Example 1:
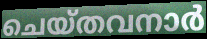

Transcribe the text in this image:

ചെയ്തവനാർ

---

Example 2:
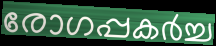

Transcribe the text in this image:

രോഗപ്പകർച്ച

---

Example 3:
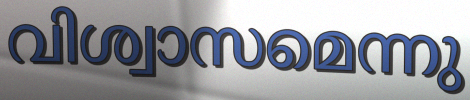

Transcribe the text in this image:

വിശ്വാസമെന്നു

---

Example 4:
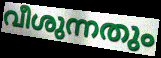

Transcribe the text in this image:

വീശുന്നതും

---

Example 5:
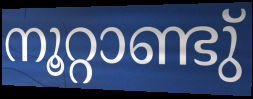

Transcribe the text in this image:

നൂറ്റാണ്ടു്